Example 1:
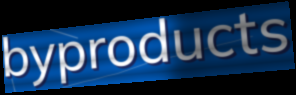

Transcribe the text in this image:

byproducts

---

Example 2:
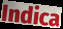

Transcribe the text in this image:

Indica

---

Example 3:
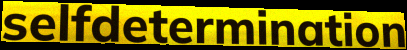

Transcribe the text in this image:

selfdetermination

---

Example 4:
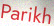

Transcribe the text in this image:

Parikh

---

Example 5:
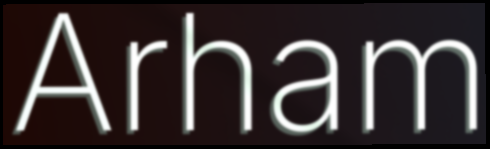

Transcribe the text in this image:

Arham